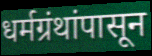
धर्मग्रंथांपासून